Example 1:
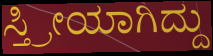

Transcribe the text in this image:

ಸ್ತ್ರೀಯಾಗಿದ್ದು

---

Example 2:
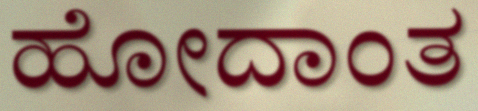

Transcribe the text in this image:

ಹೋದಾಂತ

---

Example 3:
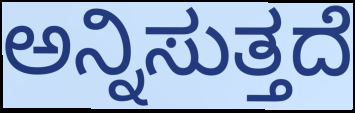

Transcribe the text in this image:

ಅನ್ನಿಸುತ್ತದೆ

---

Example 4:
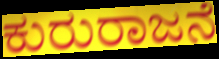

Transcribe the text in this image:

ಕುರುರಾಜನೆ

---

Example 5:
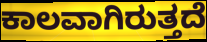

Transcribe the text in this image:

ಕಾಲವಾಗಿರುತ್ತದೆ